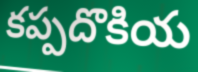
కప్పదొకియ